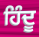
ਹਿੰਦੂ